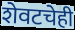
शेवटचेही